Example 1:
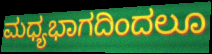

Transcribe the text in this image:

ಮಧ್ಯಭಾಗದಿಂದಲೂ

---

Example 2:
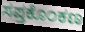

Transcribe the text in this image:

ಸಪ್ತಕೊಂಕಣ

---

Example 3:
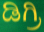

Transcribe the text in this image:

ಡಿಗ್ರಿ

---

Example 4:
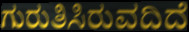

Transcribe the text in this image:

ಗುರುತಿಸಿರುವದಿದೆ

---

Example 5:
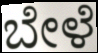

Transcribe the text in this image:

ಬೇಳೆ